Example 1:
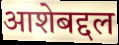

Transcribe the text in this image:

आशेबद्दल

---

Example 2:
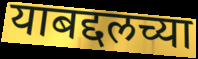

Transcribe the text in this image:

याबद्दलच्या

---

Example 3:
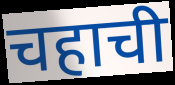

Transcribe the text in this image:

चहाची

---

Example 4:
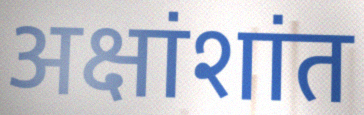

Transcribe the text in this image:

अक्षांशांत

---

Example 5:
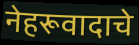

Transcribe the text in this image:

नेहरूवादाचे